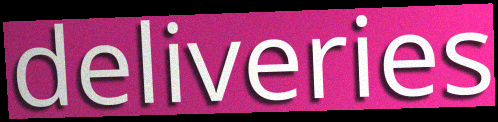
deliveries